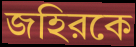
জহিরকে